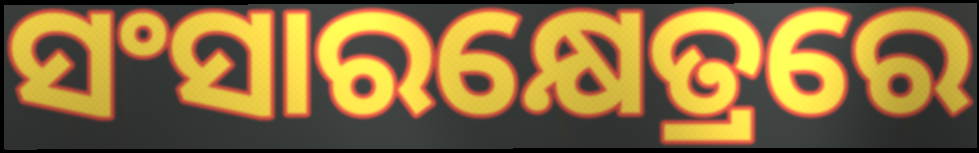
ସଂସାରକ୍ଷେତ୍ରରେ